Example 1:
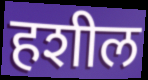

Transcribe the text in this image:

हशील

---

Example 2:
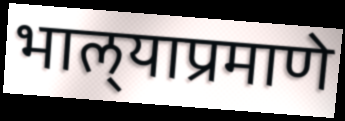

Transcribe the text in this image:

भाल्याप्रमाणे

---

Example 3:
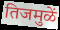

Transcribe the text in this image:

तिजमुळें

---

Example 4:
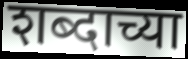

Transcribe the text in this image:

शब्दाच्या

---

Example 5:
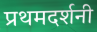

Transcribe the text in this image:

प्रथमदर्शनी